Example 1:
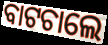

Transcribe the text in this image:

ବାଟଚାଲେ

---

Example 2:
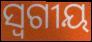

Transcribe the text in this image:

ସ୍ୱଗୀୟ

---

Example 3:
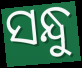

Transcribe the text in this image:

ସନ୍ଧୁ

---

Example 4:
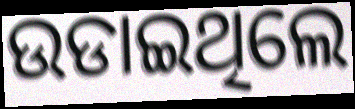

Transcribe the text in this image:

ଉଡାଇଥିଲେ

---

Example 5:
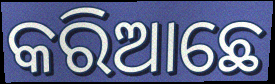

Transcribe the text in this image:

କରିଆଛେ